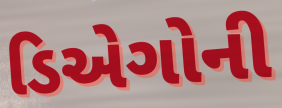
ડિએગોની